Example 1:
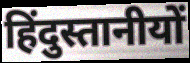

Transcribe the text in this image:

हिंदुस्तानीयों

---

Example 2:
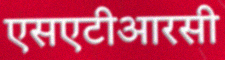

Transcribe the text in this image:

एसएटीआरसी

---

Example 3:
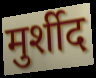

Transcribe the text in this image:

मुर्शीद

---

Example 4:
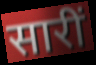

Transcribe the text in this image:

सारीं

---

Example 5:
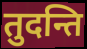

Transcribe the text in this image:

तुदन्ति